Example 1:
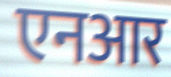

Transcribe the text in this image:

एनआर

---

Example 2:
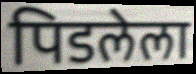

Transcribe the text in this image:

पिडलेला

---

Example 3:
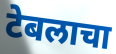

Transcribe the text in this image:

टेबलाचा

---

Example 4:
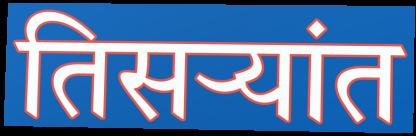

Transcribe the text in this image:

तिसर्‍यांत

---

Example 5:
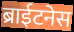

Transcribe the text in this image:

ब्राईटनेस